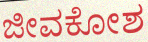
ಜೀವಕೋಶ